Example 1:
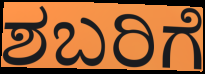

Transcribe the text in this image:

ಶಬರಿಗೆ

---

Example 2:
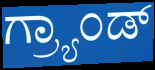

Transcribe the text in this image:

ಗ್ರ್ಯಾಂಡ್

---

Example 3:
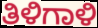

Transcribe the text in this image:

ತಿಳಿಗಾಳಿ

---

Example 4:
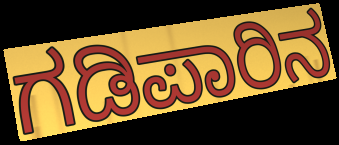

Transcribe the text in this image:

ಗಡಿಪಾರಿನ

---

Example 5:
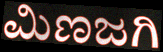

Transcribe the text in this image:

ಮಿಣಜಗಿ